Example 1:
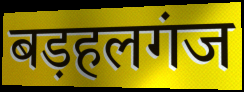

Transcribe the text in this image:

बड़हलगंज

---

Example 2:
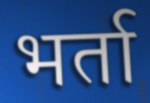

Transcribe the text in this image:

भर्ता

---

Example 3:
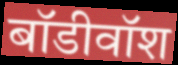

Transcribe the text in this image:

बॉडीवॉश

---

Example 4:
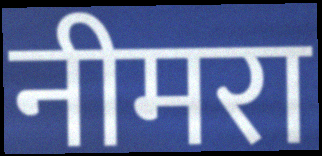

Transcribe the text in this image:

नीमरा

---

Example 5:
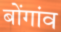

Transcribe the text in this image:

बोंगांव